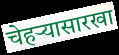
चेहऱ्यासारखा